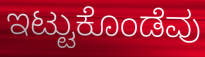
ಇಟ್ಟುಕೊಂಡೆವು